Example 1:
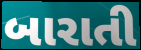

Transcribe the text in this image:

બારાતી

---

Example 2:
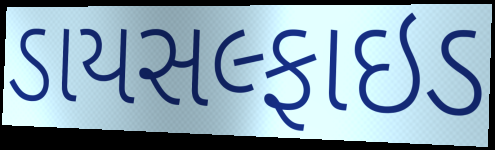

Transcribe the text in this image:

ડાયસલ્ફાઇડ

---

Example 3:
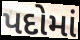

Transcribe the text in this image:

પદોમાં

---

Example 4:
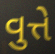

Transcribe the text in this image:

વુત્તે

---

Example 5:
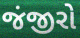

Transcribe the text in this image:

જંજીરો